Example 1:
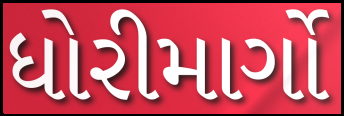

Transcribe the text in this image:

ધોરીમાર્ગો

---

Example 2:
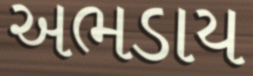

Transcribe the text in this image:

અભડાય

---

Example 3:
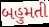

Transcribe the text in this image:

બહુમતી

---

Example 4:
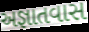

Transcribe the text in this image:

અજ્ઞાતવાસ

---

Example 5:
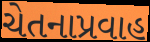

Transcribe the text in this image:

ચેતનાપ્રવાહ